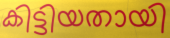
കിട്ടിയതായി